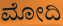
ಮೋದಿ